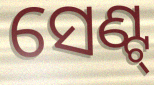
ସେଣ୍ଟ୍